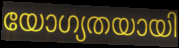
യോഗ്യതയായി